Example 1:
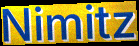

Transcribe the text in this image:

Nimitz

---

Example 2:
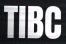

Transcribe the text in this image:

TIBC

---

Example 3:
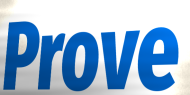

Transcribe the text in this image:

Prove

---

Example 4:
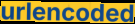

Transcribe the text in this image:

urlencoded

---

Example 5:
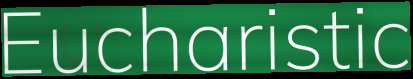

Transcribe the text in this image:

Eucharistic